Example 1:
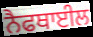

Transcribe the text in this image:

ਨੈਫਥਾਈਲ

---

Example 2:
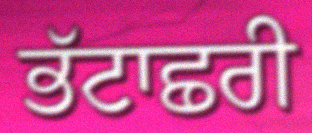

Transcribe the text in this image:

ਭੱਟਾਛਰੀ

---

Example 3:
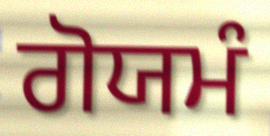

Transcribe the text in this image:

ਗੋਯਮੰ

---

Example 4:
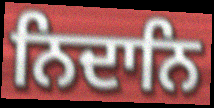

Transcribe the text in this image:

ਨਿਦਾਨਿ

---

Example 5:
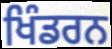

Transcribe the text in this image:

ਖਿੰਡਰਨ